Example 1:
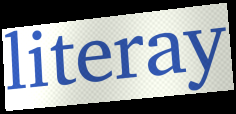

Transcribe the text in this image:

literay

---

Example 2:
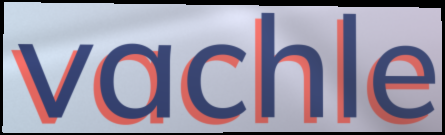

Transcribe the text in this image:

vachle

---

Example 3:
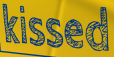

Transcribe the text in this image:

kissed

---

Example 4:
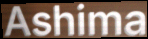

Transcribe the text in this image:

Ashima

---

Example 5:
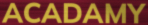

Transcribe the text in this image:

ACADAMY